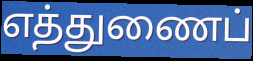
எத்துணைப்